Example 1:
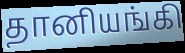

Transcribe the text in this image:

தானியங்கி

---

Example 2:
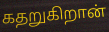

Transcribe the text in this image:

கதறுகிறான்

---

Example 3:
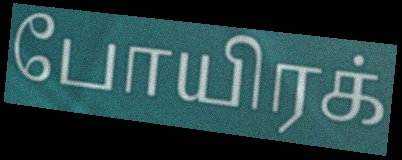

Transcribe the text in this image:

போயிரக்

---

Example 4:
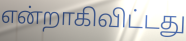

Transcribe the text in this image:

என்றாகிவிட்டது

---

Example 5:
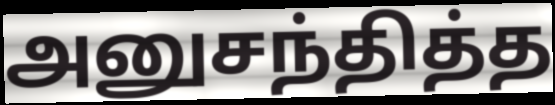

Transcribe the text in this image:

அனுசந்தித்த